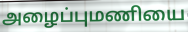
அழைப்புமணியை